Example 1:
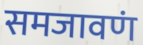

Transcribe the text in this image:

समजावणं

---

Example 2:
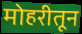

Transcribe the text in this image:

मोहरीतून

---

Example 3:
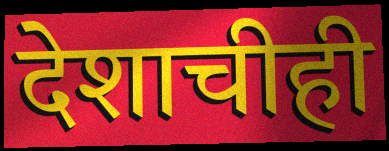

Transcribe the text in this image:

देशाचीही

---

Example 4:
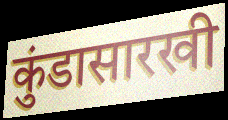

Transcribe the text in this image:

कुंडासारखी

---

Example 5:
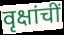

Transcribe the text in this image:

वृक्षांचीं